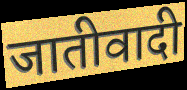
जातीवादी